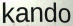
kando